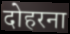
दोहरना